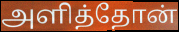
அளித்தோன்